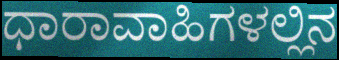
ಧಾರಾವಾಹಿಗಳಲ್ಲಿನ